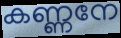
കണ്ണനേ